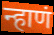
न्हाणं